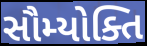
સૌમ્યોક્તિ